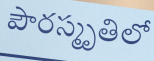
పౌరస్మృతిలో